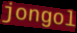
jongol